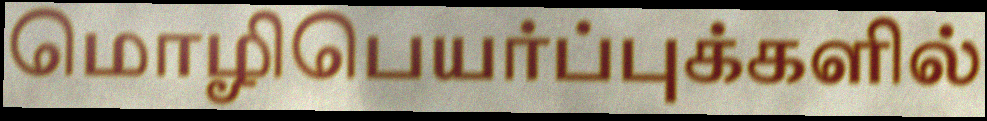
மொழிபெயர்ப்புக்களில்